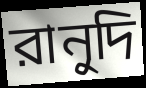
রানুদি